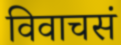
विवाचसं